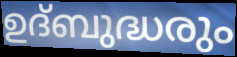
ഉദ്ബുദ്ധരും